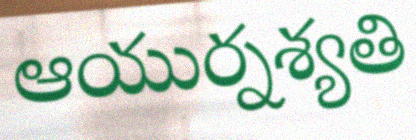
ఆయుర్నశ్యతి